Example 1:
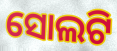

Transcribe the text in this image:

ସୋଲଟି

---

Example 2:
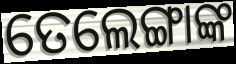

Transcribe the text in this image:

ତେଲେଙ୍ଗାଙ୍କ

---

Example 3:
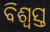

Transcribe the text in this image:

ବିଶ୍ଵସ୍ତ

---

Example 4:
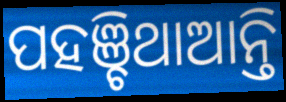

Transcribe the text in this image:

ପହଞ୍ଚିଥାଆନ୍ତି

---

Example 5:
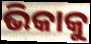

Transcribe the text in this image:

ଭିକାକୁ